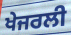
ਖੇਜਰਲੀ